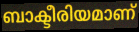
ബാക്ടീരിയമാണ്